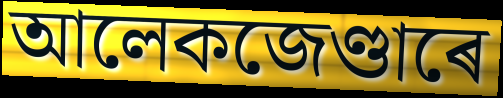
আলেকজেণ্ডাৰে